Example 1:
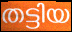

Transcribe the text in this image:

തട്ടിയ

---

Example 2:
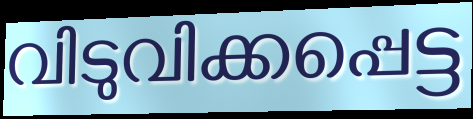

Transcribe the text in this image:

വിടുവിക്കപ്പെട്ട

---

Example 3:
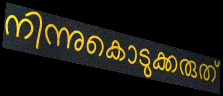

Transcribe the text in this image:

നിന്നുകൊടുക്കരുത്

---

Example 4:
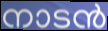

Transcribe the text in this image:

നാടൻ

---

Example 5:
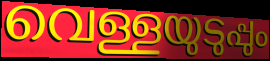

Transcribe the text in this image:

വെള്ളയുടുപ്പും